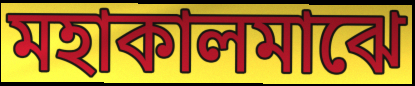
মহাকালমাঝে